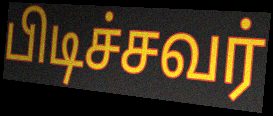
பிடிச்சவர்